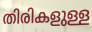
തിരികളുള്ള